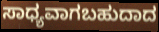
ಸಾಧ್ಯವಾಗಬಹುದಾದ